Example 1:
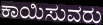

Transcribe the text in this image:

ಕಾಯಿಸುವರು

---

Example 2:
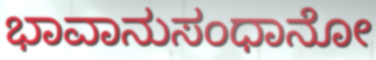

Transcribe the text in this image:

ಭಾವಾನುಸಂಧಾನೋ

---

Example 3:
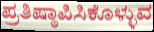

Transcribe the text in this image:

ಪ್ರತಿಷ್ಠಾಪಿಸಿಕೊಳ್ಳುವ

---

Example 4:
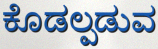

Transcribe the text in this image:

ಕೊಡಲ್ಪಡುವ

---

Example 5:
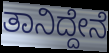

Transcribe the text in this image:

ತಾನಿದ್ದೇನೆ